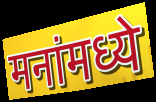
मनांमध्ये